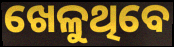
ଖେଳୁଥିବେ